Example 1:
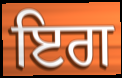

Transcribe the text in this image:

ਇਗ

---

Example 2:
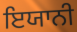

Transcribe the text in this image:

ਇਯਾਨੀ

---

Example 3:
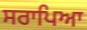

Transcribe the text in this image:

ਸਰਾਪਿਆ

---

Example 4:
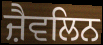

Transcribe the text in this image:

ਜ਼ੈਵਲਿਨ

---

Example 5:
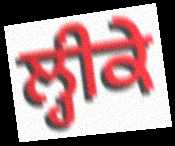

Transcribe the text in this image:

ਲ੍ਹੀਕੇ